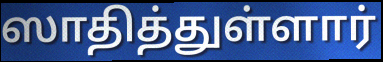
ஸாதித்துள்ளார்